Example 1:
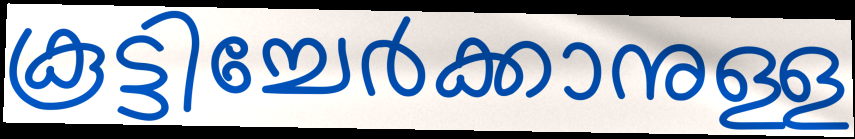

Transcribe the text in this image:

കൂട്ടിച്ചേർക്കാനുള്ള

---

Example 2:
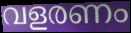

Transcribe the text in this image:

വളരണം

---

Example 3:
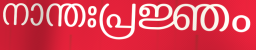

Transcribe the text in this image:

നാന്തഃപ്രജ്ഞം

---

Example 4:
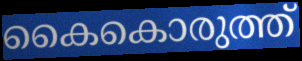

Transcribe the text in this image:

കൈകൊരുത്ത്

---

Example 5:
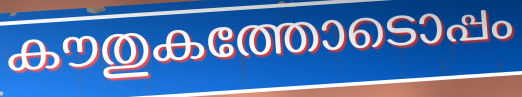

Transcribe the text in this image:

കൗതുകത്തോടൊപ്പം